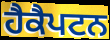
ਹੈਕੈਪਟਨ